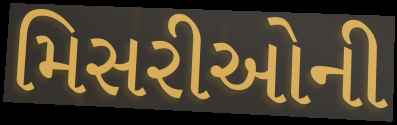
મિસરીઓની